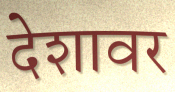
देशावर